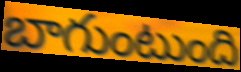
బాగుంటుంది